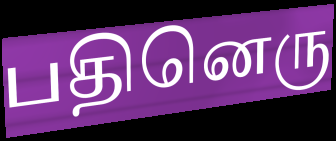
பதினெரு